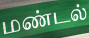
மண்டல்